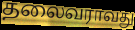
தலைவராவது